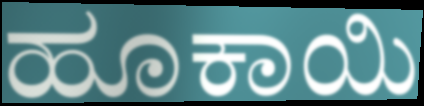
ಹೂಕಾಯಿ